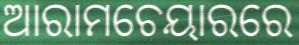
ଆରାମଚେୟାରରେ